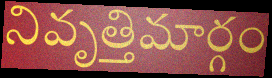
నివృత్తిమార్గం